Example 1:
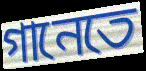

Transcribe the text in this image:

গানেতে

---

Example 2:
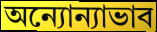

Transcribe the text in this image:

অন্যোন্যাভাব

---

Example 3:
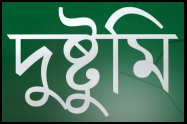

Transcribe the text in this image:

দুষ্টুমি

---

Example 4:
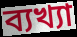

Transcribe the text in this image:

ব্যখ্যা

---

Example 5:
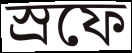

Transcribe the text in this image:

স্রফে